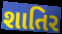
શાતિર